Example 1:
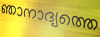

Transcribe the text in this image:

ഞാനാദ്യത്തെ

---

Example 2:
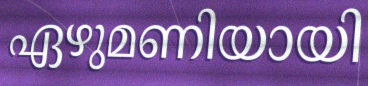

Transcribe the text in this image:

ഏഴുമണിയായി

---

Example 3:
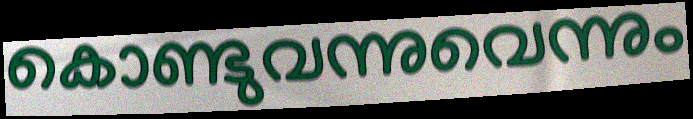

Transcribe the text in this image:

കൊണ്ടുവന്നുവെന്നും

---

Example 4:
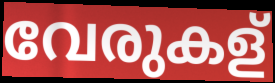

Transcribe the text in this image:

വേരുകള്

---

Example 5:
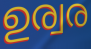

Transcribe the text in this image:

ഉര്വര